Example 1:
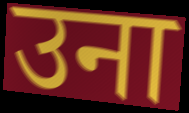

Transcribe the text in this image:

उना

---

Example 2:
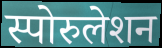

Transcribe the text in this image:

स्पोरुलेशन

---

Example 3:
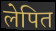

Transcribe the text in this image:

लेपित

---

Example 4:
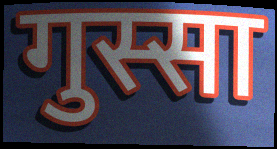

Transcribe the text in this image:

गुस्सा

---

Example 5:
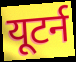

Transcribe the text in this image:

यूटर्न